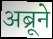
अब्रूने